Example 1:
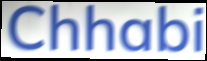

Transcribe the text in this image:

Chhabi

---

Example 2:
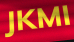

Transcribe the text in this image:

JKMI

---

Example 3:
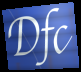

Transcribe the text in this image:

Dfc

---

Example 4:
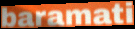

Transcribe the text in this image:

baramati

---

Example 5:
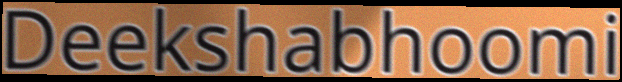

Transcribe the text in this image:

Deekshabhoomi